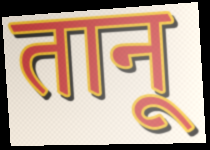
तानू